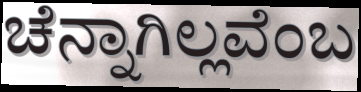
ಚೆನ್ನಾಗಿಲ್ಲವೆಂಬ